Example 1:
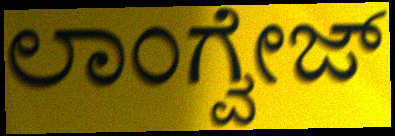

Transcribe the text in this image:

ಲಾಂಗ್ವೇಜ್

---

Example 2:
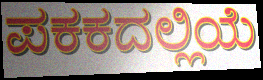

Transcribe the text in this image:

ಪಕಕದಲ್ಲಿಯೆ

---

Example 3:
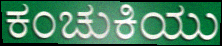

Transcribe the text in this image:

ಕಂಚುಕಿಯು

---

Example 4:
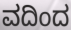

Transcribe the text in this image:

ವದಿಂದ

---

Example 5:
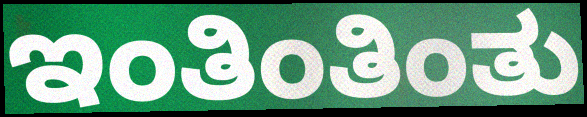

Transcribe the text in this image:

ಇಂತಿಂತಿಂತು